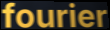
fourier